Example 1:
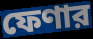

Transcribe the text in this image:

ফেণার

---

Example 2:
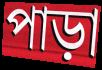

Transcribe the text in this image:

পাড়া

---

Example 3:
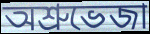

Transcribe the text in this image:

অশ্রুভেজা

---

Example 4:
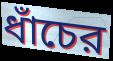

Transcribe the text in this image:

ধাঁচের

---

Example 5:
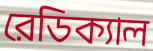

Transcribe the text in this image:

রেডিক্যাল